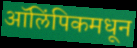
ऑलिंपिकमधून